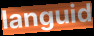
languid